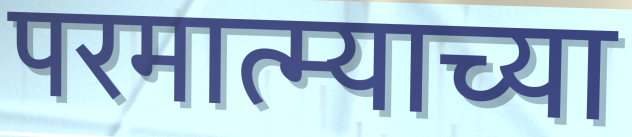
परमात्म्याच्या